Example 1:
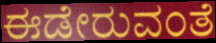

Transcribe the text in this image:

ಈಡೇರುವಂತೆ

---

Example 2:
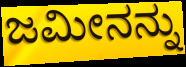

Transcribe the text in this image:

ಜಮೀನನ್ನು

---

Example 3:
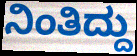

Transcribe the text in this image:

ನಿಂತಿದ್ದು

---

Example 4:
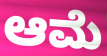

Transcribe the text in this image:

ಆಮೆ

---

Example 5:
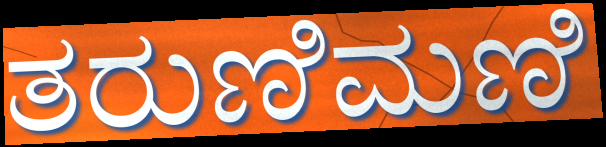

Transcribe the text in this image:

ತರುಣಿಮಣಿ